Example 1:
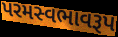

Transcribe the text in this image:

પરમસ્વભાવરૂપ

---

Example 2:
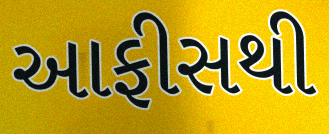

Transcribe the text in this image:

આફીસથી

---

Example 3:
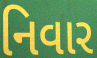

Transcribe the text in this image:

નિવાર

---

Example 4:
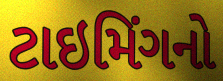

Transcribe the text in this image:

ટાઇમિંગનો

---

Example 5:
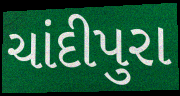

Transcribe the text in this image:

ચાંદીપુરા